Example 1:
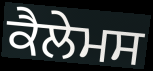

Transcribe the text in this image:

ਕੈਲੇਮਸ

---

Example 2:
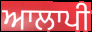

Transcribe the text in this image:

ਆਲਾਪੀ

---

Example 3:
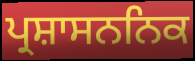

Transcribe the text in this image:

ਪ੍ਰਸ਼ਾਸਨਨਿਕ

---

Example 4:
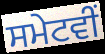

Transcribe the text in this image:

ਸਮੇਟਵੀਂ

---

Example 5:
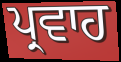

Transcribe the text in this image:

ਪ੍ਰਵਾਹ